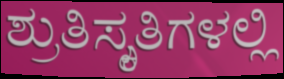
ಶ್ರುತಿಸ್ಕೃತಿಗಳಲ್ಲಿ